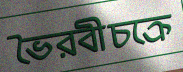
ভৈরবীচক্রে